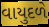
વાયુદળે